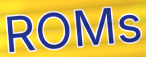
ROMs